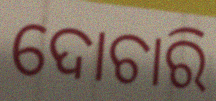
ଦୋଚାରି